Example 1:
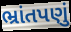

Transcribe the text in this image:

ભ્રાંતપણું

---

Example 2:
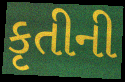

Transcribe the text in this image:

કૃતીની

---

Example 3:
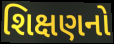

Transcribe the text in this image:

શિક્ષણનો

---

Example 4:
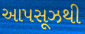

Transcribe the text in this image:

આપસૂઝથી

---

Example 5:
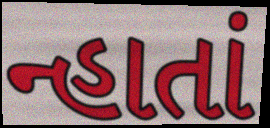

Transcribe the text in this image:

ન્હાતાં